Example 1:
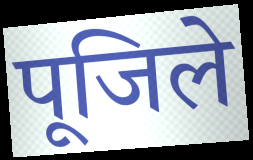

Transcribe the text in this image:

पूजिले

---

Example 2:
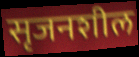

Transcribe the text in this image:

सृजनशील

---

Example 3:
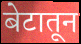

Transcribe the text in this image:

बेटातून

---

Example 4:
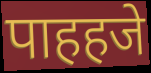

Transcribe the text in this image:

पाहहजे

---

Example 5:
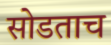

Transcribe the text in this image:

सोडताच